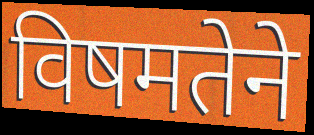
विषमतेने